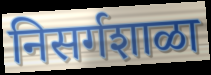
निसर्गशाळा